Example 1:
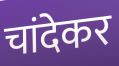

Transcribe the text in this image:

चांदेकर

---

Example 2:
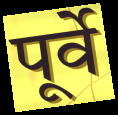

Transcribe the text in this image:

पूर्वे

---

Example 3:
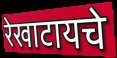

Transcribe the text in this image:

रेखाटायचे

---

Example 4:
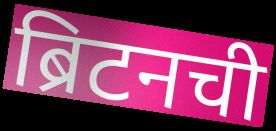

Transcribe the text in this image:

ब्रिटनची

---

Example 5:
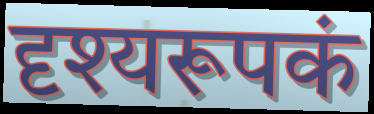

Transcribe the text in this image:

दृश्‍यरूपकं